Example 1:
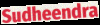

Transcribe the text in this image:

Sudheendra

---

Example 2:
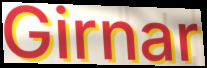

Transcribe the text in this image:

Girnar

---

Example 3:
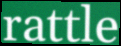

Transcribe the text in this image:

rattle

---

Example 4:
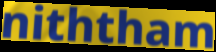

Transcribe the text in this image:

niththam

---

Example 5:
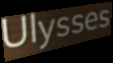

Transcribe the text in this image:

Ulysses